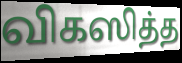
விகஸித்த